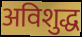
अविशुद्ध